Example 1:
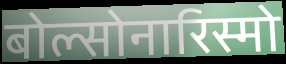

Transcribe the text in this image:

बोल्सोनारिस्मो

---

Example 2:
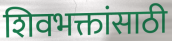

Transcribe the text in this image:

शिवभक्तांसाठी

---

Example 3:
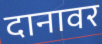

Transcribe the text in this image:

दानावर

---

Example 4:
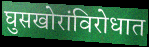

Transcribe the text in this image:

घुसखोरांविरोधात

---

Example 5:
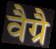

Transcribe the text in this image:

वैग्रै